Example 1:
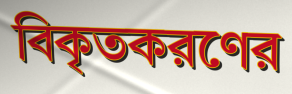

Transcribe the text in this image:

বিকৃতকরণের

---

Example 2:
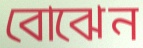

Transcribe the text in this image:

বোঝেন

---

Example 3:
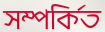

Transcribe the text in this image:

সম্পর্কিত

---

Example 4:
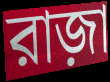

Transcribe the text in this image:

রাজ়া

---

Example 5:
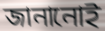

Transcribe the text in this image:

জানানোই